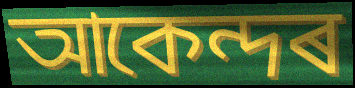
আকেন্দৰ